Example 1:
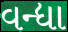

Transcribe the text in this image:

વન્દ્યા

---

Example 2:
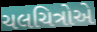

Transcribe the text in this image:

ચલચિત્રોએ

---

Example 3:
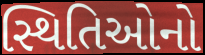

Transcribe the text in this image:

સ્થિતિઓનો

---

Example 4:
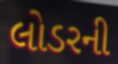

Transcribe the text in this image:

લોડરની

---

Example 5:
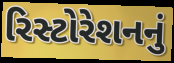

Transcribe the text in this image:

રિસ્ટોરેશનનું